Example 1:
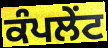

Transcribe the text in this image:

ਕੰਪਲੇਂਟ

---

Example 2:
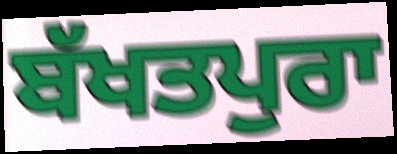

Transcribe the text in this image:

ਬੱਖਤਪੁਰਾ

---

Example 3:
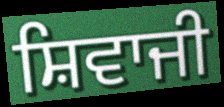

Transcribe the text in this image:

ਸ਼ਿਵਾਜੀ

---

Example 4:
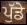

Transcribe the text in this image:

ਪੁੱਡੇ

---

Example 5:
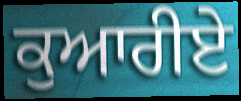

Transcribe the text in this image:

ਕੁਆਰੀਏ